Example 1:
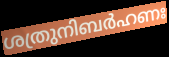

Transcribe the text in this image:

ശത്രുനിബർഹണഃ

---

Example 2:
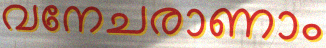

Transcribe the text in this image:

വനേചരാണാം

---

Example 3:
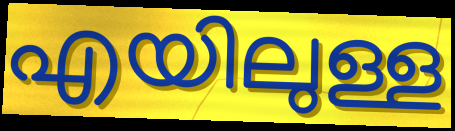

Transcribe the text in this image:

എയിലുള്ള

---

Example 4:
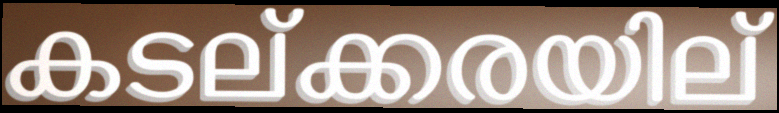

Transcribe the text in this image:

കടല്ക്കരയില്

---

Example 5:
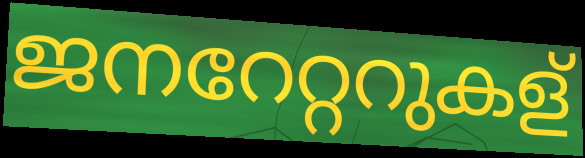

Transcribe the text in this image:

ജനറേറ്ററുകള്